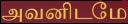
அவனிடமே